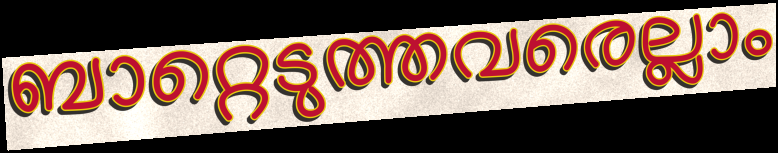
ബാറ്റെടുത്തവരെല്ലാം